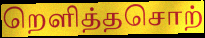
றெளித்தசொற்